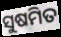
ସୁଷମିତ